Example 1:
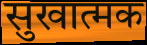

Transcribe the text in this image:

सुखात्मक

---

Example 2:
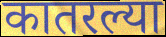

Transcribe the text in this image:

कातरल्या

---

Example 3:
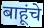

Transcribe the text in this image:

बाहूंचे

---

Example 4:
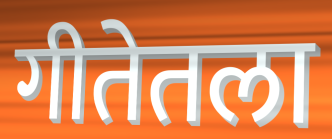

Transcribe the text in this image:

गीतेतला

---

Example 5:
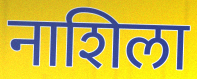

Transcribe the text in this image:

नाशिला